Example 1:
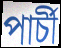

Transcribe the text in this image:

পাৰ্চী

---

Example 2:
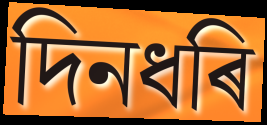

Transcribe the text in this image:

দিনধৰি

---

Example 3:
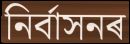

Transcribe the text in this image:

নিৰ্বাসনৰ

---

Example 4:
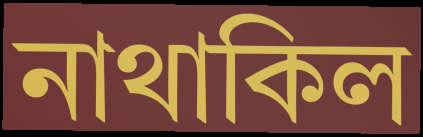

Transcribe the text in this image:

নাথাকিল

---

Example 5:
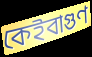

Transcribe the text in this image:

কেইবাগুণ